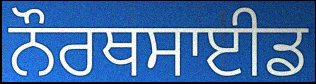
ਨੌਰਥਸਾਈਡ